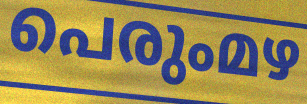
പെരുംമഴ